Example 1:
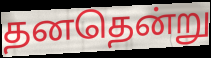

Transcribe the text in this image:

தனதென்று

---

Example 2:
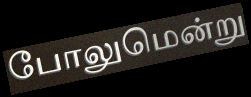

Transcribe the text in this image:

போலுமென்று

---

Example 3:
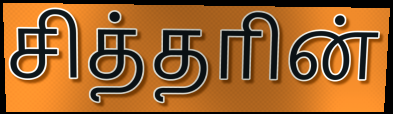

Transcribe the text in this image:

சித்தரின்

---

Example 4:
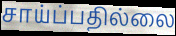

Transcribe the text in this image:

சாய்ப்பதில்லை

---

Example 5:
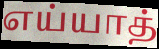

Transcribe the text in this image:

எய்யாத்